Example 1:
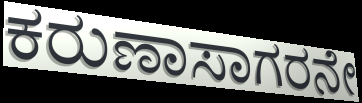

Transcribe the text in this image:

ಕರುಣಾಸಾಗರನೇ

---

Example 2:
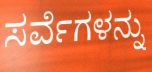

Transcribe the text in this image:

ಸರ್ವೆಗಳನ್ನು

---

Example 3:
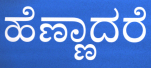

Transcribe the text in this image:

ಹೆಣ್ಣಾದರೆ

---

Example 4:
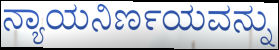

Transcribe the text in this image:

ನ್ಯಾಯನಿರ್ಣಯವನ್ನು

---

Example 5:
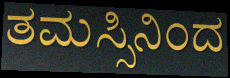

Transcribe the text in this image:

ತಮಸ್ಸಿನಿಂದ